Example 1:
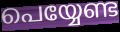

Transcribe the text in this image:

പെയ്യേണ്ട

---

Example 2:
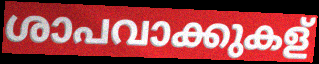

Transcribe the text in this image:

ശാപവാക്കുകള്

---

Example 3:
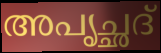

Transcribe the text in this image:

അപൃച്ഛദ്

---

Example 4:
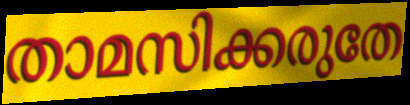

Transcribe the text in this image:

താമസിക്കരുതേ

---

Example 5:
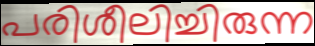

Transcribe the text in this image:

പരിശീലിച്ചിരുന്ന